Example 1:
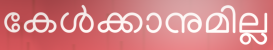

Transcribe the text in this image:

കേൾക്കാനുമില്ല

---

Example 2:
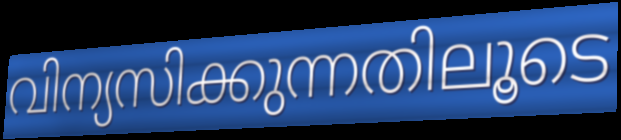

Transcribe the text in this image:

വിന്യസിക്കുന്നതിലൂടെ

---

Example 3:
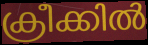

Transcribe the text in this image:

ക്രീക്കിൽ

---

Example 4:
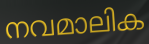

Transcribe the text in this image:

നവമാലിക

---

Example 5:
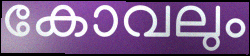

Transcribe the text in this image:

കോവലും